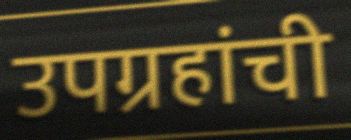
उपग्रहांची